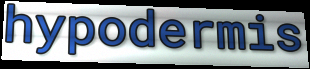
hypodermis